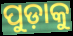
ପୁଡ଼ାକୁ